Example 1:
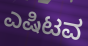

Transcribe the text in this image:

ಎಷಿಟವ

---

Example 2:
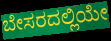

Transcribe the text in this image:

ಬೇಸರದಲ್ಲಿಯೇ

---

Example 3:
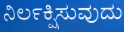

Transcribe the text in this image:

ನಿರ್ಲಕ್ಷಿಸುವುದು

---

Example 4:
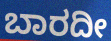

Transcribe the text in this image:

ಬಾರದೀ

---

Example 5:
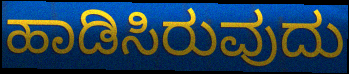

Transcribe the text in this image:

ಹಾಡಿಸಿರುವುದು